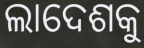
ଲାଦେଶକୁ